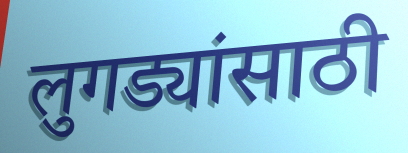
लुगड्यांसाठी